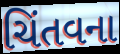
ચિંતવના